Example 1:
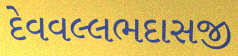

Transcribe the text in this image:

દેવવલ્લભદાસજી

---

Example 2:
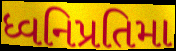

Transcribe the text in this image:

ધ્વનિપ્રતિમા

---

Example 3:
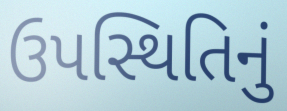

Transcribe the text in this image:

ઉપસ્થિતિનું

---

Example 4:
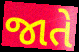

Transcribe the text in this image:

જાતે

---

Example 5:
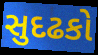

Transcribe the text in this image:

સુદઢકો